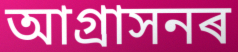
আগ্ৰাসনৰ